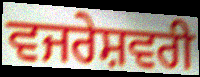
ਵਜਰੇਸ਼ਵਰੀ